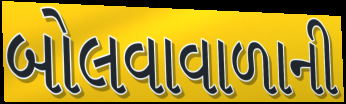
બોલવાવાળાની